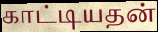
காட்டியதன்